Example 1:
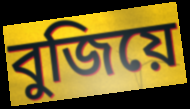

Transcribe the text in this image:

বুজিয়ে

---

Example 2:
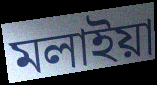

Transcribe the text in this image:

মলাইয়া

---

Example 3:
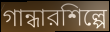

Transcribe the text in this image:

গান্ধারশিল্পে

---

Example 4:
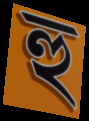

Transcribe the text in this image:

হু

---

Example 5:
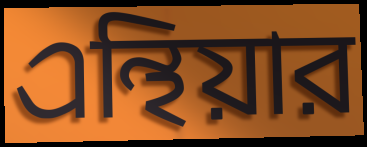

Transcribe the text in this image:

এন্থিয়ার